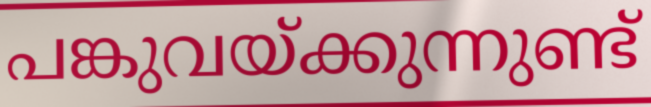
പങ്കുവയ്ക്കുന്നുണ്ട്